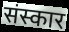
संस्कार